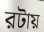
রটায়